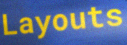
Layouts